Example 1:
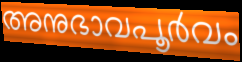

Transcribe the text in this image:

അനുഭാവപൂർവം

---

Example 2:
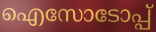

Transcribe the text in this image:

ഐസോടോപ്പ്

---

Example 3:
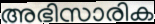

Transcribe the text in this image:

അഭിസാരിക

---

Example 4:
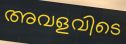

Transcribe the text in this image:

അവളവിടെ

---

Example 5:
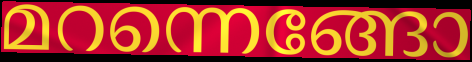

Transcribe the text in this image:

മറന്നെങ്ങോ